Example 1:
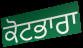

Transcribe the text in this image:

ਕੋਟਭਾਰਾ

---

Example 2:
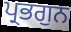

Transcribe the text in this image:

ਪ੍ਰਭਗੁਨ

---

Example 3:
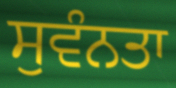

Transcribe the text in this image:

ਸੁਵੰਨਤਾ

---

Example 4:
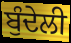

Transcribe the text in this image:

ਬੁੰਦੇਲੀ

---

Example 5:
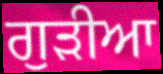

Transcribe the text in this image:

ਗੁੜੀਆ